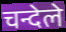
चन्देले